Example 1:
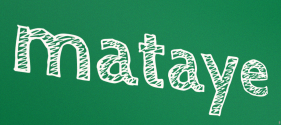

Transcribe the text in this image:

mataye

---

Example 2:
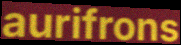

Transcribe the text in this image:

aurifrons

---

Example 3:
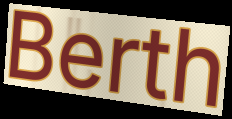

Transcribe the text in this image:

Berth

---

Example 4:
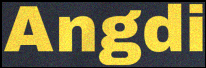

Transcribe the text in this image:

Angdi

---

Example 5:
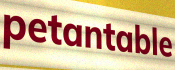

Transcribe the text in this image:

petantable